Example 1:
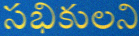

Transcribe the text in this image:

సభికులని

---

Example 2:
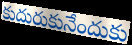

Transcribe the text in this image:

కుదురుకునేందుకు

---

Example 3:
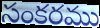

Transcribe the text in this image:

సంకరము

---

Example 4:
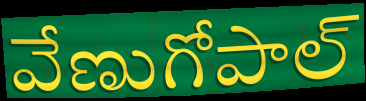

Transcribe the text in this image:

వేణుగోపాల్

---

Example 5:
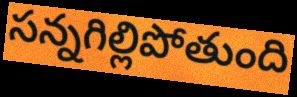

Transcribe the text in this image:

సన్నగిల్లిపోతుంది